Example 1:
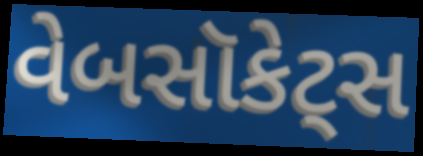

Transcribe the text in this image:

વેબસૉકેટ્સ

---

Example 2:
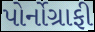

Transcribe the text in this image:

પોર્નોગ્રાફી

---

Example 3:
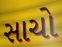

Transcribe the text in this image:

સાચો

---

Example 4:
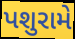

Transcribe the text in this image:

પશુરામે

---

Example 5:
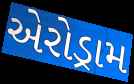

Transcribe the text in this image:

એરોડ્રામ